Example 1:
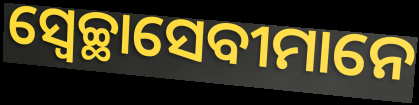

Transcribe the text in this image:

ସ୍ୱେଚ୍ଛାସେବୀମାନେ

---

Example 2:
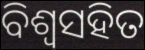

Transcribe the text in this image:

ବିଶ୍ଵସହିତ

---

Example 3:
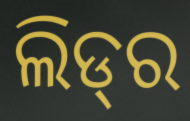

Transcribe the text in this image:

ଲିଡ୍‌ର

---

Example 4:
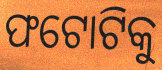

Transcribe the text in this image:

ଫଟୋଟିକୁ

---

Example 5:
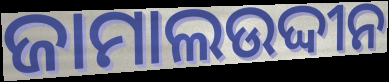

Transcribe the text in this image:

ଜାମାଲଉଦ୍ଦୀନ